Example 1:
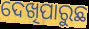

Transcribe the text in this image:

ଦେଖିପାରୁଛ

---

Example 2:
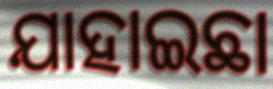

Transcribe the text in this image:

ଯାହାଇଛା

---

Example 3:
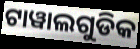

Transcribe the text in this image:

ଟାୱାଲଗୁଡିକ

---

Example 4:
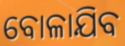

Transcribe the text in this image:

ବୋଳାଯିବ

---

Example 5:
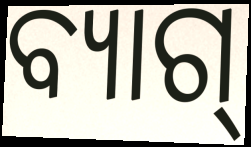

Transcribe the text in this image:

ବ୍ୟାଗ୍